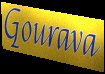
Gourava